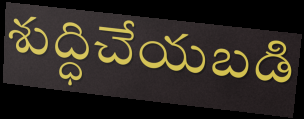
శుద్ధిచేయబడి